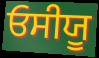
ਓਸੀਯੂ